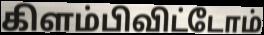
கிளம்பிவிட்டோம்